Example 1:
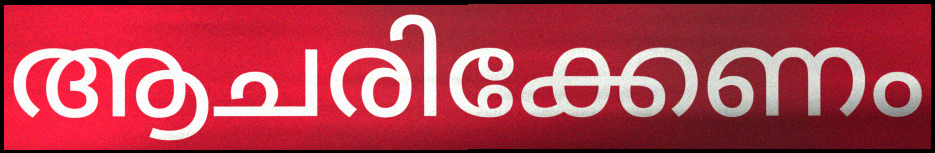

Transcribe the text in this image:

ആചരിക്കേണം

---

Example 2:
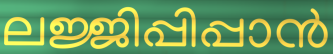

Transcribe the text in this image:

ലജ്ജിപ്പിപ്പാൻ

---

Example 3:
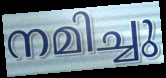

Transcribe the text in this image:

നമിച്ചു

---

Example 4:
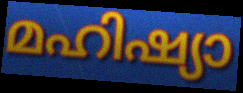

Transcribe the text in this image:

മഹിഷ്യാ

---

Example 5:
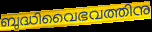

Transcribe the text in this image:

ബുദ്ധിവൈഭവത്തിനു